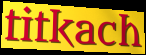
titkach